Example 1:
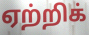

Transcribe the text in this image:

ஏற்றிக்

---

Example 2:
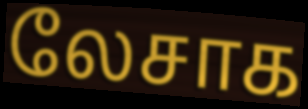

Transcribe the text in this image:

லேசாக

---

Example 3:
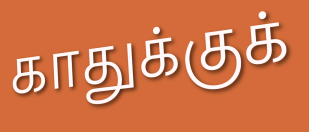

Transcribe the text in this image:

காதுக்குக்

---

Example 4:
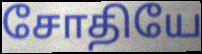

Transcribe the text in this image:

சோதியே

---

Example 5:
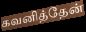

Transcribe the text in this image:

கவனித்தேன்